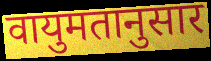
वायुमतानुसार